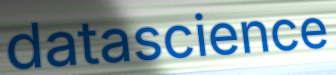
datascience